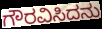
ಗೌರವಿಸಿದನು